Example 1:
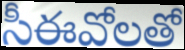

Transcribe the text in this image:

సీఈవోలతో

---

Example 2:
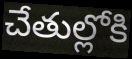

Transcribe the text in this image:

చేతుల్లోకి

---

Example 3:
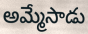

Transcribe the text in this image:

అమ్మేసాడు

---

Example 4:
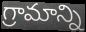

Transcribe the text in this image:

గ్రామాన్ని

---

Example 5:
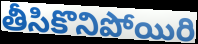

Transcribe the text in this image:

తీసికొనిపోయిరి